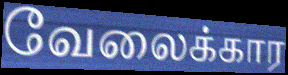
வேலைக்கார